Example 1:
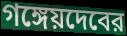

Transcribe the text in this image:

গঙ্গেয়দেবের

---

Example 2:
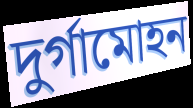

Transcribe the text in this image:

দুর্গামোহন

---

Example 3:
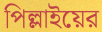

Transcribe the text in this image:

পিল্লাইয়ের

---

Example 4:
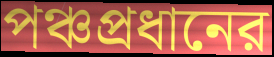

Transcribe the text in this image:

পঞ্চপ্রধানের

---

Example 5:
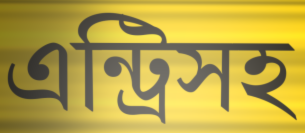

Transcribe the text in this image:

এন্ট্রিসহ